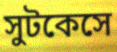
সুটকেসে